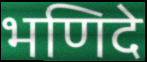
भणिदे